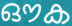
ഔക